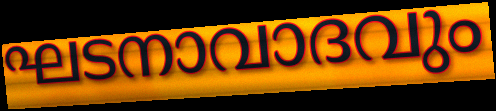
ഘടനാവാദവും